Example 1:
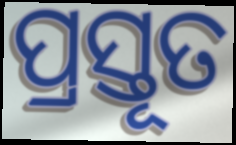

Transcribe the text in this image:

ପ୍ରସ୍ତୂତ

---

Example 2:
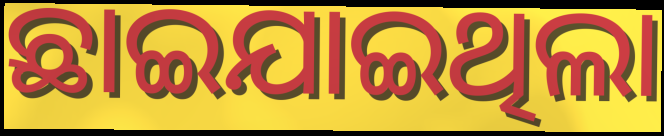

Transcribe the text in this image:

ଛାଇଯାଇଥିଲା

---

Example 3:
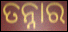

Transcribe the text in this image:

ତନ୍ନାର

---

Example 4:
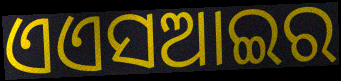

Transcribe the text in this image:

ଏଏସଆଇର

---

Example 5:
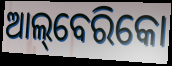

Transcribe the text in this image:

ଆଲ୍‌ବେରିକୋ